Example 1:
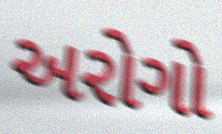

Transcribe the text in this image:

અરોગો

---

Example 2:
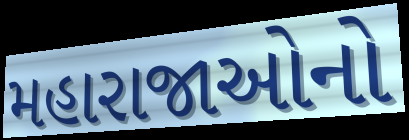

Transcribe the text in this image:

મહારાજાઓનો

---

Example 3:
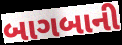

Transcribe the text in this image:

બાગબાની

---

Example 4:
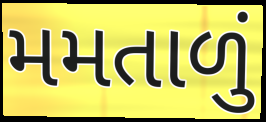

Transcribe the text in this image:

મમતાળું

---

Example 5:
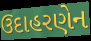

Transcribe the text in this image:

ઉદાહરણેન